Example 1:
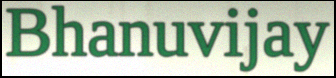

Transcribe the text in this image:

Bhanuvijay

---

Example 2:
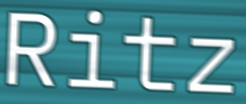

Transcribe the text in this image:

Ritz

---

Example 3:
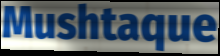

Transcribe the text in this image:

Mushtaque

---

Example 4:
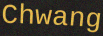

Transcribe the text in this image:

Chwang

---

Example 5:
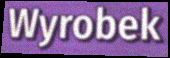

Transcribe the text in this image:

Wyrobek